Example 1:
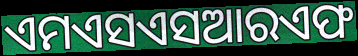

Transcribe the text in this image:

ଏମଏସଏସଆରଏଫ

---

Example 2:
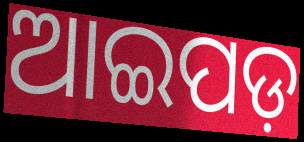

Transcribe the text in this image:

ଆଇପଡ଼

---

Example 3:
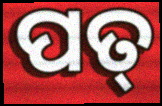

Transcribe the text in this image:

ପତ୍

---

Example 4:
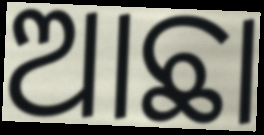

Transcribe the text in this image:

ଆଛା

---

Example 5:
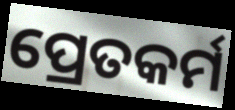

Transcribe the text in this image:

ପ୍ରେତକର୍ମ